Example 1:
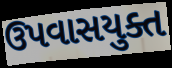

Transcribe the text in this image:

ઉપવાસયુક્ત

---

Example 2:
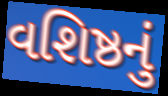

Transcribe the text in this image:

વશિષ્ઠનું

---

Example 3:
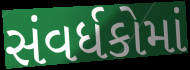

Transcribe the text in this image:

સંવર્ધકોમાં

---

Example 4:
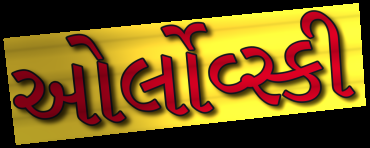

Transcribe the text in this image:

ઓર્લોવ્સ્કી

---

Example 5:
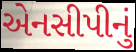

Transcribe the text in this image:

એનસીપીનું